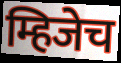
म्हिजेच